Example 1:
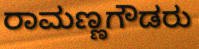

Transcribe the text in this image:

ರಾಮಣ್ಣಗೌಡರು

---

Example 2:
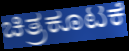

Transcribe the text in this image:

ಚಿತ್ರಕೂಟಕೆ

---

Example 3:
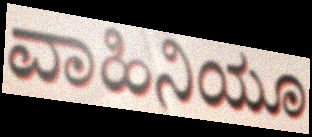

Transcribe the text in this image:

ವಾಹಿನಿಯೂ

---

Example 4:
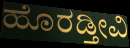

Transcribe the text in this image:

ಹೊರಡ್ತೀವಿ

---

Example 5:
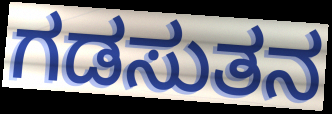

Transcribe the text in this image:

ಗಡಸುತನ